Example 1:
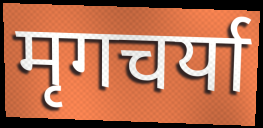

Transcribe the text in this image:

मृगचर्या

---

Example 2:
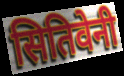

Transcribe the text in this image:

सितिवेनी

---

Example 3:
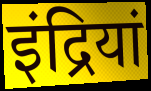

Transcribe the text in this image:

इंद्रियां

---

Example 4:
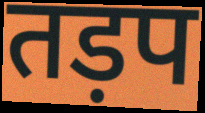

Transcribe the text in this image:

तड़प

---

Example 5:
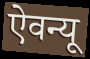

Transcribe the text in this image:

ऐवन्यू